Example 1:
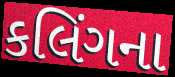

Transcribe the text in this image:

કલિંગના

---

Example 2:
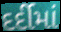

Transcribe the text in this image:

દર્દીમાં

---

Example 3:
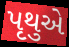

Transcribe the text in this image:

પૃથુએ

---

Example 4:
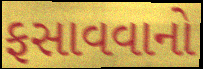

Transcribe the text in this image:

ફસાવવાનો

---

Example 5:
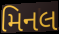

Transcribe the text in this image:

મિનલ